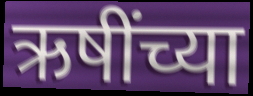
ऋषींच्या